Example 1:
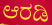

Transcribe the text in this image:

ಆರಡಿ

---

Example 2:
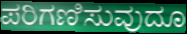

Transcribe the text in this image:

ಪರಿಗಣಿಸುವುದೂ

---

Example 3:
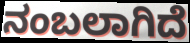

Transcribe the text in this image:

ನಂಬಲಾಗಿದೆ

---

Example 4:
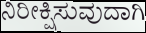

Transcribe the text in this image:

ನಿರೀಕ್ಷಿಸುವುದಾಗಿ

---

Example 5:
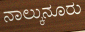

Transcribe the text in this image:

ನಾಲ್ಕುನೂರು